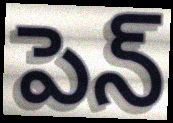
పెన్